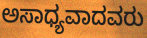
ಅಸಾಧ್ಯವಾದವರು